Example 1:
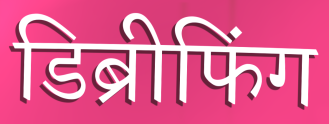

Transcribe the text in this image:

डिब्रीफिंग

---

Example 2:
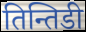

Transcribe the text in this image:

तिन्तिडी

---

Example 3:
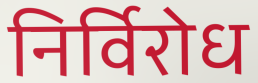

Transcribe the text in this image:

निर्विरोध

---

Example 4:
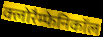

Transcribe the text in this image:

क्लोरैम्फेनिकॉल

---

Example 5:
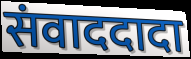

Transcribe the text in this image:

संवाददादा